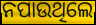
ନପାଉଥିଲେ